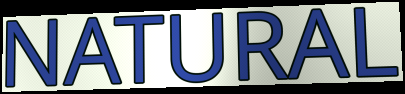
NATURAL